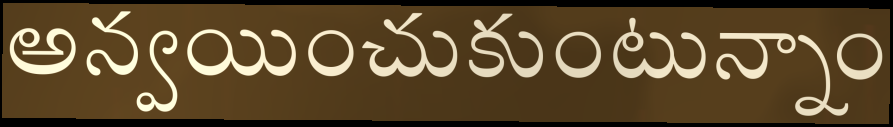
అన్వయించుకుంటున్నాం